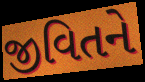
જીવિતને